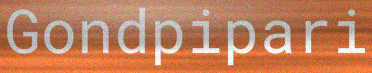
Gondpipari